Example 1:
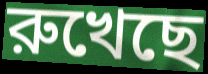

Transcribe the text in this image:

রুখেছে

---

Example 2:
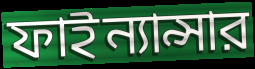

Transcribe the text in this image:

ফাইন্যান্সার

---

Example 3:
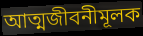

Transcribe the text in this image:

আত্মজীবনীমূলক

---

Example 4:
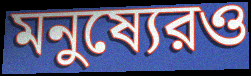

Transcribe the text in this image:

মনুষ্যেরও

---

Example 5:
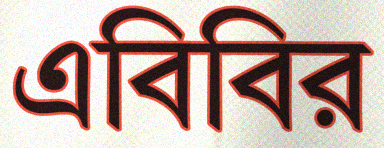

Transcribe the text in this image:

এবিবির